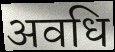
अवधि